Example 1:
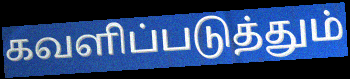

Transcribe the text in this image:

கவளிப்படுத்தும்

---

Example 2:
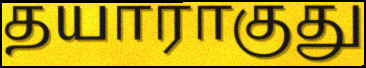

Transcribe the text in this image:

தயாராகுது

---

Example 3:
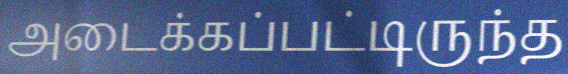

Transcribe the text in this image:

அடைக்கப்பட்டிருந்த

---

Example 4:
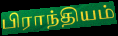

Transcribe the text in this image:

பிராந்தியம்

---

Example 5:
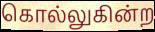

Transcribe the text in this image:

கொல்லுகின்ற